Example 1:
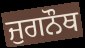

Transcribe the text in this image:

ਜੁਗਨੌਥ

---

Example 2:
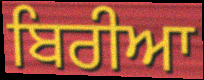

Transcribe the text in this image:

ਬਿਰੀਆ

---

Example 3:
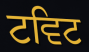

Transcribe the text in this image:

ਟਵਿਟ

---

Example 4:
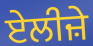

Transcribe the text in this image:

ਏਲੀਜ਼ੇ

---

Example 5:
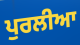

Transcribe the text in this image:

ਪੁਰਲੀਆ